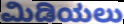
ಮಿಡಿಯಲು